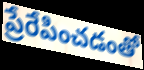
ప్రేరేపించడంతో